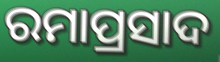
ରମାପ୍ରସାଦ